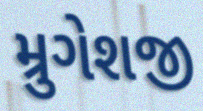
મ્રુગેશજી